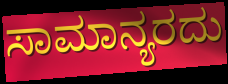
ಸಾಮಾನ್ಯರದು